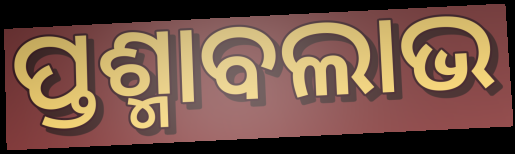
ପ୍ତଶ୍ମାବଲାଭ